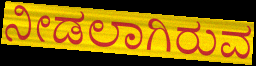
ನೀಡಲಾಗಿರುವ